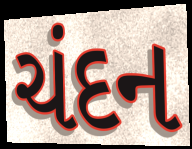
ચંદન